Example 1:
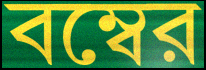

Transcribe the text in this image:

বম্বের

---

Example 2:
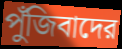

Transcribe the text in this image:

পুঁজিবাদের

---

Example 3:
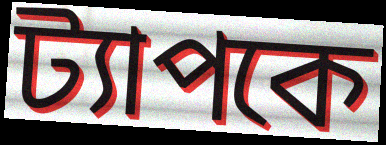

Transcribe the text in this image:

ট্যাপকে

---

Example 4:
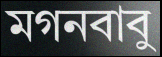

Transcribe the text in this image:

মগনবাবু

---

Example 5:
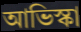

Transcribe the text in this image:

আভিস্কা